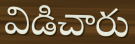
విడిచారు